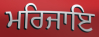
ਮਰਿਜਾਇ